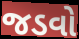
જડવો